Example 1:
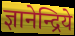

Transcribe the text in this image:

ज्ञानेन्द्रिये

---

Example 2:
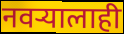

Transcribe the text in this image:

नवऱ्यालाही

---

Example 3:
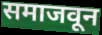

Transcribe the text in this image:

समाजवून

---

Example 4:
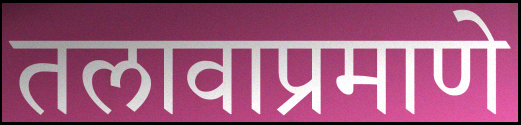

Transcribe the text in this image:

तलावाप्रमाणे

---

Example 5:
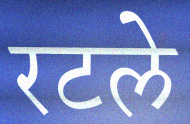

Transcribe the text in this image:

रटले